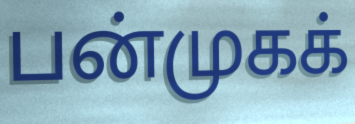
பன்முகக்